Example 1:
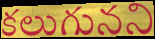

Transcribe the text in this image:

కలుగునని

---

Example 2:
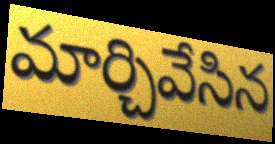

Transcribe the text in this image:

మార్చివేసిన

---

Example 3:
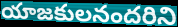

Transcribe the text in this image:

యాజకులనందరిని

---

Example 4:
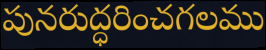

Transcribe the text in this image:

పునరుద్ధరించగలము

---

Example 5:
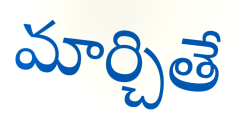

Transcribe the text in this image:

మార్చితే